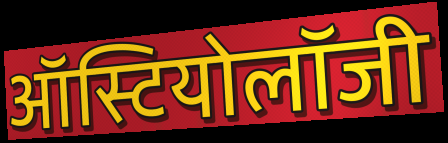
ऑस्टियोलॉजी